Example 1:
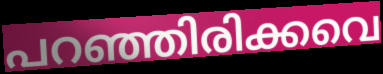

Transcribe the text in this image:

പറഞ്ഞിരിക്കവെ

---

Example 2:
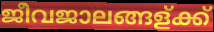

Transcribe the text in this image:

ജീവജാലങ്ങള്ക്ക്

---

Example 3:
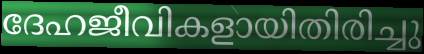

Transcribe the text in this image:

ദേഹജീവികളായിതിരിച്ചു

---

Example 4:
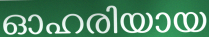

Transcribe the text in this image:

ഓഹരിയായ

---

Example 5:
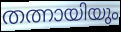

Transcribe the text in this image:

തത്നായിയും